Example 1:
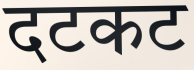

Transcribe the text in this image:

दटकट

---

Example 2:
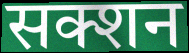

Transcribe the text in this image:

सक्शन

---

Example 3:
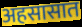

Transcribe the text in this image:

अहसासात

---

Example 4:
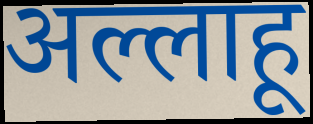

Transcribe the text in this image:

अल्लाहू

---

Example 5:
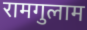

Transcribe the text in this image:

रामगुलाम